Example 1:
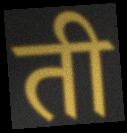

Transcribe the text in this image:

ती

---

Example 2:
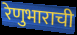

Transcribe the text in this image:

रेणुभाराची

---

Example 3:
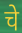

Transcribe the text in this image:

चे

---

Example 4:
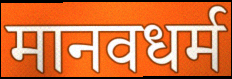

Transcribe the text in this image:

मानवधर्म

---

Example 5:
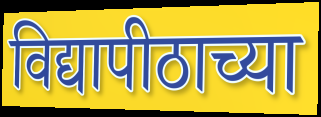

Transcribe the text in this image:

विद्यापीठाच्या